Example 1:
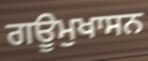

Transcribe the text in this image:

ਗਊਮੁਖਾਸਨ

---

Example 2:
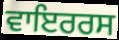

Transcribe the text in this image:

ਵਾਇਰਰਸ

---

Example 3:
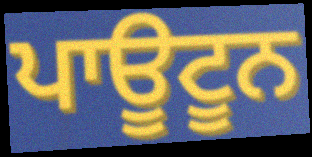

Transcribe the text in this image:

ਪਾਊਟੂਨ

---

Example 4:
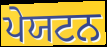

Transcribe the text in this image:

ਪੇਯਟਨ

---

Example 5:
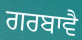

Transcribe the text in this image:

ਗਰਬਾਵੈ